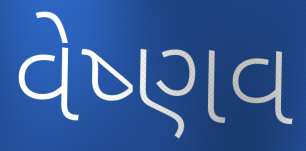
વેષ્ણવ